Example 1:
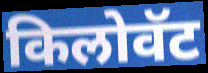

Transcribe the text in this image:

किलोवॅट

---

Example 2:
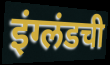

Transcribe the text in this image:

इंग्लंडची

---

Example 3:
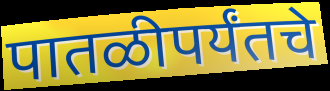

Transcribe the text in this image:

पातळीपर्यंतचे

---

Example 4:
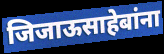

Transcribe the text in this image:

जिजाऊसाहेबांना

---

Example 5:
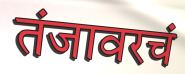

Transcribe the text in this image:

तंजावरचं